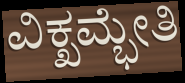
ವಿಕ್ಖಮ್ಭೇತಿ